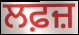
ਲਫ਼ਜ਼